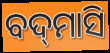
ବଦ୍‌ମାସି